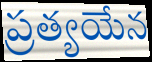
ప్రత్యయేన